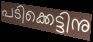
പടിക്കെട്ടിനു